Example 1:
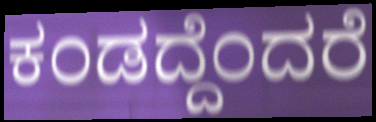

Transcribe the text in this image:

ಕಂಡದ್ದೆಂದರೆ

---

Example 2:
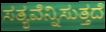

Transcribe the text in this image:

ಸತ್ಯವೆನ್ನಿಸುತ್ತದೆ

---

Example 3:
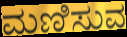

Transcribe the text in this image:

ಮಣಿಸುವ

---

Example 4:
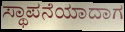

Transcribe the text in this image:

ಸ್ಥಾಪನೆಯಾದಾಗ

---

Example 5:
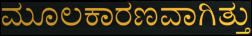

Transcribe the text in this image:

ಮೂಲಕಾರಣವಾಗಿತ್ತು